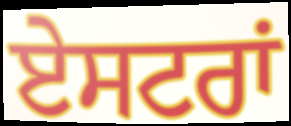
ਏਸਟਰਾਂ